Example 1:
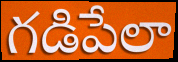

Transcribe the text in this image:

గడిపేలా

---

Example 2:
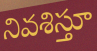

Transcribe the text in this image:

నివశిస్తూ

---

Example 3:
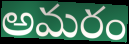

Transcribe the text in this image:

అమరం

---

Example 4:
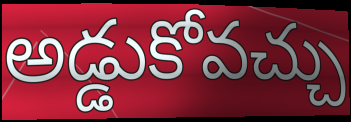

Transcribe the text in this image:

అడ్డుకోవచ్చు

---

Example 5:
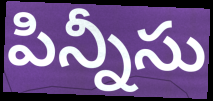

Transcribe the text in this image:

పిన్నీసు